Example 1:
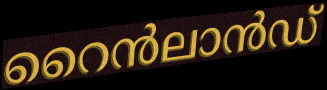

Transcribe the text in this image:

റൈൻലാൻഡ്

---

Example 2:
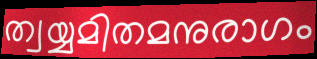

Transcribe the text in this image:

ത്വയ്യമിതമനുരാഗം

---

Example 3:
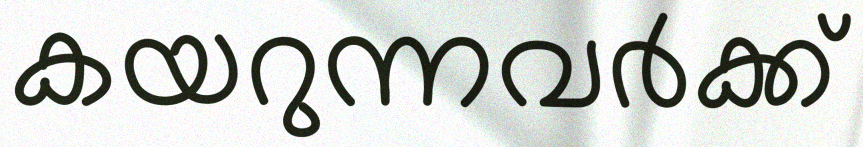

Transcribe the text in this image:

കയറുന്നവർക്ക്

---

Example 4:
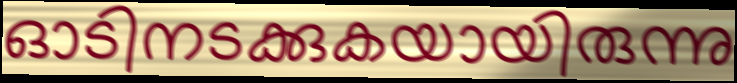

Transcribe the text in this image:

ഓടിനടക്കുകയായിരുന്നു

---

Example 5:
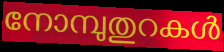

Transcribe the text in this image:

നോമ്പുതുറകൾ